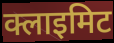
क्लाइमिट